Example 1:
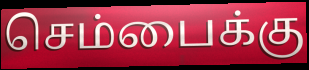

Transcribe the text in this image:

செம்பைக்கு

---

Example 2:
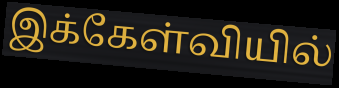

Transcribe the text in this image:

இக்கேள்வியில்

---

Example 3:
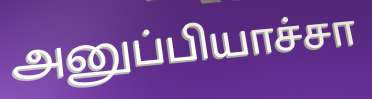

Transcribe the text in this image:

அனுப்பியாச்சா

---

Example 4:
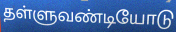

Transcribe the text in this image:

தள்ளுவண்டியோடு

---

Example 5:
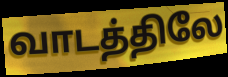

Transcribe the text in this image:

வாடத்திலே